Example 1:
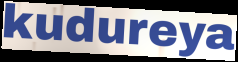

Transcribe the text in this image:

kudureya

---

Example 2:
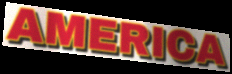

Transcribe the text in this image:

AMERICA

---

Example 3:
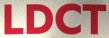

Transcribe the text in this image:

LDCT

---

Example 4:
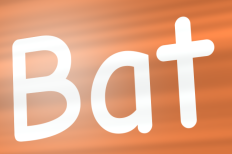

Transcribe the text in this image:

Bat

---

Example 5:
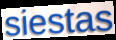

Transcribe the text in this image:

siestas